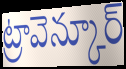
ట్రావెన్కూర్